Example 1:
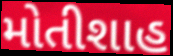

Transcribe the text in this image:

મોતીશાહ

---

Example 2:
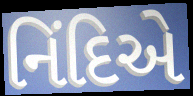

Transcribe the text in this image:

નિંદિએ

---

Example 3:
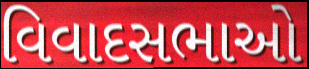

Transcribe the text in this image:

વિવાદસભાઓ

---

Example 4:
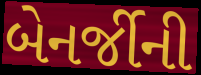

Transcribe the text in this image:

બેનર્જીની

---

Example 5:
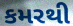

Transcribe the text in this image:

કમરથી